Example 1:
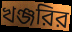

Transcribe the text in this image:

খঞ্জরির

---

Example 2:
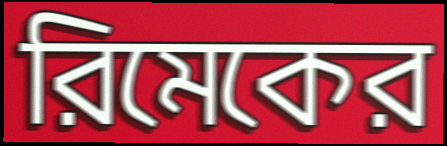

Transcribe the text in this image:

রিমেকের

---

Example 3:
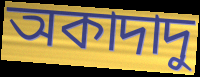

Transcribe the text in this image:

অকাদাদু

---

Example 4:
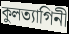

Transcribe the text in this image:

কুলত্যাগিনী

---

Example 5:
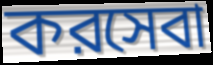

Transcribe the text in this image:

করসেবা